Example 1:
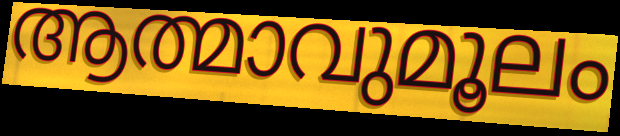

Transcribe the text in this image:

ആത്മാവുമൂലം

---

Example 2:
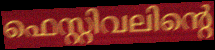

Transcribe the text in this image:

ഫെസ്റ്റിവലിന്റെ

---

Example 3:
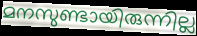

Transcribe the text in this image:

മനസുണ്ടായിരുന്നില്ല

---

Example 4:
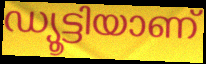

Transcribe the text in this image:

ഡ്യൂട്ടിയാണ്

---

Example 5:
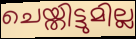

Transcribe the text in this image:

ചെയ്തിട്ടുമില്ല